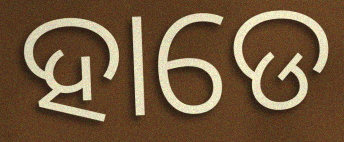
ହାଡେ